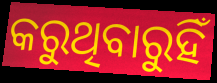
କରୁଥିବାରୁହିଁ